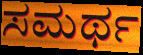
ಸಮರ್ಥ